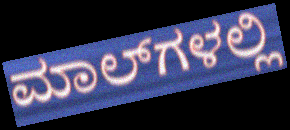
ಮಾಲ್‌ಗಳಲ್ಲಿ